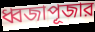
ধ্বজাপূজার